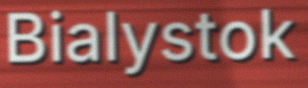
Bialystok